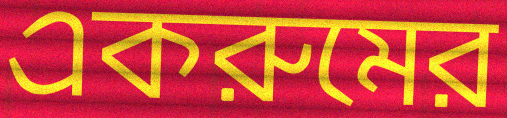
একরুমের